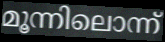
മൂന്നിലൊന്ന്